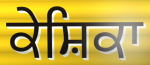
ਕੇਸ਼ਿਕਾ